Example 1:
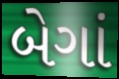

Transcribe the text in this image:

બેગાં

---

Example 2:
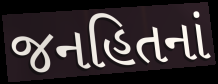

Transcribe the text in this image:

જનહિતનાં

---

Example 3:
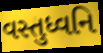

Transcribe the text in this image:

વસ્તુધ્વનિ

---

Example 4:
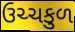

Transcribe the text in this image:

ઉચ્ચકુળ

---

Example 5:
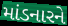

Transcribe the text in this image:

માંડનારને